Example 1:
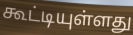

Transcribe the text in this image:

கூட்டியுள்ளது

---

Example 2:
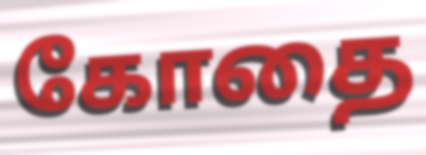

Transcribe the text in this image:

கோதை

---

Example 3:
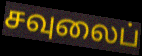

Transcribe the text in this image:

சவுலைப்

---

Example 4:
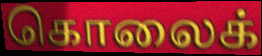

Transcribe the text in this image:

கொலைக்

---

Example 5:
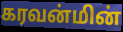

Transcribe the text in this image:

கரவன்மின்